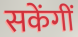
सकेंगीं